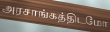
அரசாங்கத்திடமோ